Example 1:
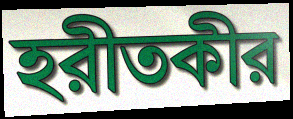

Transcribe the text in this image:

হরীতকীর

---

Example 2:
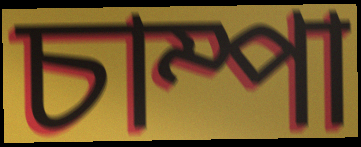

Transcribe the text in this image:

চাম্পা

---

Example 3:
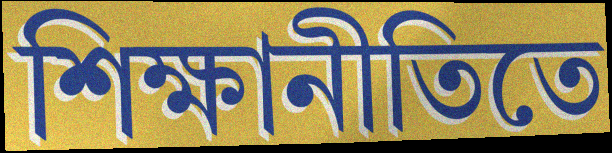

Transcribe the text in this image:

শিক্ষানীতিতে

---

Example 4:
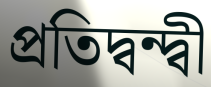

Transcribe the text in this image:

প্রতিদ্বন্দ্বী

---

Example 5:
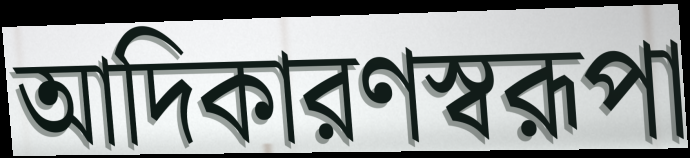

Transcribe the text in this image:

আদিকারণস্বরূপা